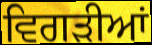
ਵਿਗੜੀਆਂ